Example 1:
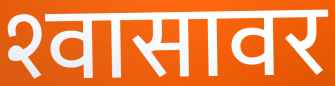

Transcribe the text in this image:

श्वासावर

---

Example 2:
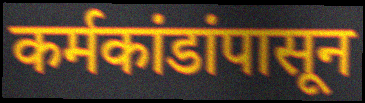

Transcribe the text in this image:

कर्मकांडांपासून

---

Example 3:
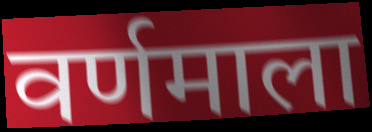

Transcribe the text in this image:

वर्णमाला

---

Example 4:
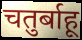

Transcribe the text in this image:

चतुर्बाहू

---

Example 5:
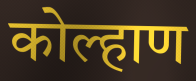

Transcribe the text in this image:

कोल्हाण